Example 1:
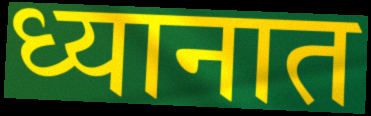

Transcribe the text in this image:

ध्यानात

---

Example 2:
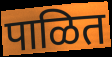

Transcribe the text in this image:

पाळित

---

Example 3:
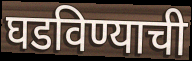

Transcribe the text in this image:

घडविण्याची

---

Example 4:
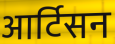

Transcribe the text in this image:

आर्टिसन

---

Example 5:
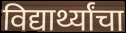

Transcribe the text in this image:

विद्यार्थ्यांचा